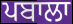
ਪਬਾਲਾ